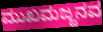
ಮುಖಮಜ್ಜನವ